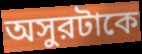
অসুরটাকে